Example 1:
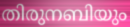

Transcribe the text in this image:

തിരുനബിയും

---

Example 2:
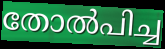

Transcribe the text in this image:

തോൽപിച്ച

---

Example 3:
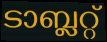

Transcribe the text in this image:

ടാബ്ലറ്റ്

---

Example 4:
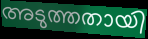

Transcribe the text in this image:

അടുത്തതായി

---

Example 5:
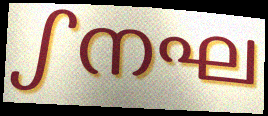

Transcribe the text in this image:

ഽനഘ